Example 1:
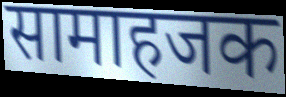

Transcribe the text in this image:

सामाहजक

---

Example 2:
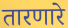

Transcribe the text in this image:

तारणारे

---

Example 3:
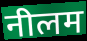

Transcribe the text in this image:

नीलम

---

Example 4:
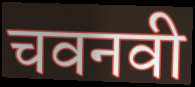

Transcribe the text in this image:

चवनवी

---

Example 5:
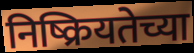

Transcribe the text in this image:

निष्क्रियतेच्या